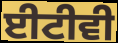
ਈਟੀਵੀ